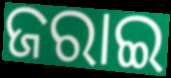
ଜରାଇ